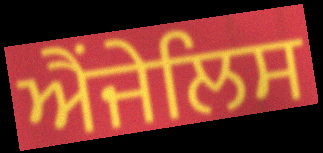
ਐਂਜੇਲਿਸ